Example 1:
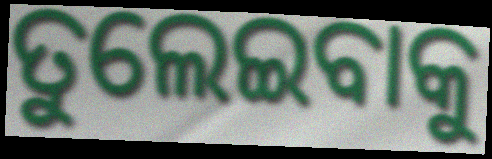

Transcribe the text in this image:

ତୁଲେଇବାକୁ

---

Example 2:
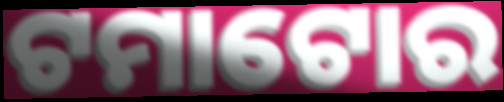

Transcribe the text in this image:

ଟମାଟୋର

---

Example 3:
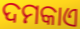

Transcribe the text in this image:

ଦମକାଏ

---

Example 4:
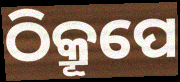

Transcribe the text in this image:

ଠିକ୍ରୂପେ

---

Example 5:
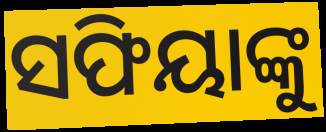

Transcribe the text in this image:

ସଫିୟାଙ୍କୁ